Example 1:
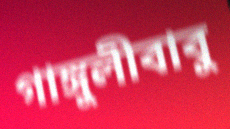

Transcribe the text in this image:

গাঙ্গুলীবাবু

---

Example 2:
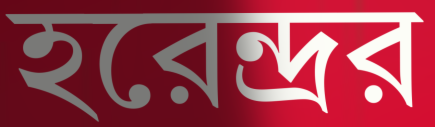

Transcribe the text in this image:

হরেন্দ্রর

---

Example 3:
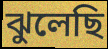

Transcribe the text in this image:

ঝুলেছি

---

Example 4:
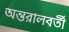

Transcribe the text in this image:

অন্তরালবর্তী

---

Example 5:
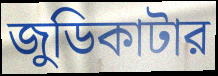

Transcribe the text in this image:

জুডিকাটার